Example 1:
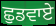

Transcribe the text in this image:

ਛੁਡਵਾਏ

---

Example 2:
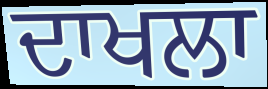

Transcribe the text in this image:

ਦਾਖਲਾ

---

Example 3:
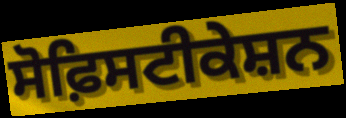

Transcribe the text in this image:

ਸੋਫ਼ਿਸਟੀਕੇਸ਼ਨ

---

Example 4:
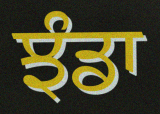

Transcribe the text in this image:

ਝੰਡਾ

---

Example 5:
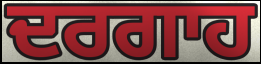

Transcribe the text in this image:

ਦਰਗਾਹ